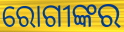
ରୋଗୀଙ୍କର